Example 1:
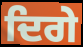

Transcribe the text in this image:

ਦਿਗੇ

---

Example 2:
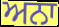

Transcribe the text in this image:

ਅਨਾ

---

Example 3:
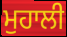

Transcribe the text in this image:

ਮੁਹਾਲੀ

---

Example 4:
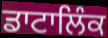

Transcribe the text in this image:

ਡਾਟਾਲਿੰਕ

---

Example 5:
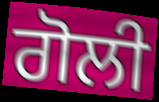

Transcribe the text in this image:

ਗੋਲੀ